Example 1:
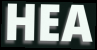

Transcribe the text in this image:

HEA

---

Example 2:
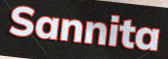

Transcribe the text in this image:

Sannita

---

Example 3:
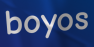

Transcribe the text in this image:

boyos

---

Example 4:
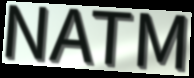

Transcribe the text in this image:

NATM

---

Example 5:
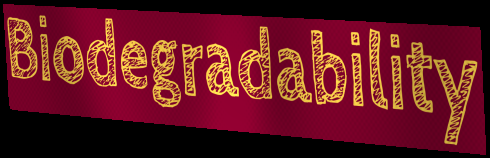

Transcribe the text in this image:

Biodegradability